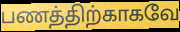
பணத்திற்காகவே